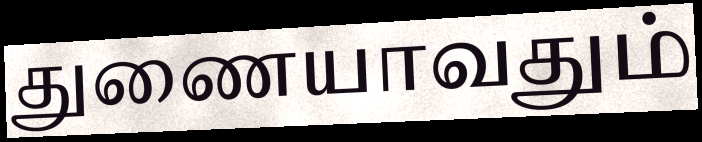
துணையாவதும்